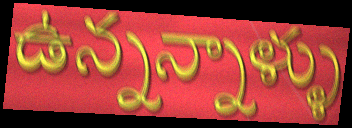
ఉన్నన్నాళ్ళు